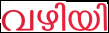
വഴിയി